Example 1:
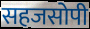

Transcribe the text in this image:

सहजसोपी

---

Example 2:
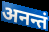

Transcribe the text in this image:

अनन्तं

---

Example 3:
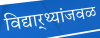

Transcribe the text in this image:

विद्यार्थ्यांजवळ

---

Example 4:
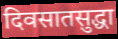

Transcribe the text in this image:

दिवसातसुद्धा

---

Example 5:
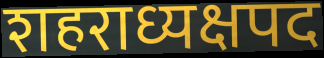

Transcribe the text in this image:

शहराध्यक्षपद